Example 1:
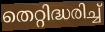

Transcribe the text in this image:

തെറ്റിദ്ധരിച്ച്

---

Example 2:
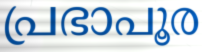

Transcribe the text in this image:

പ്രഭാപൂര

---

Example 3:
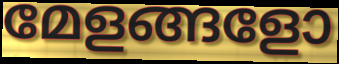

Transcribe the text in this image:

മേളങ്ങളോ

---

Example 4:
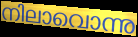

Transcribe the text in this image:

നിലാവൊന്നു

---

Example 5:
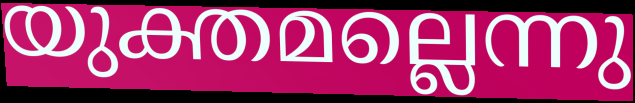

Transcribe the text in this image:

യുക്തമല്ലെന്നു